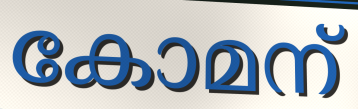
കോമന്